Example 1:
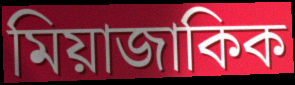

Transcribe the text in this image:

মিয়াজাকিক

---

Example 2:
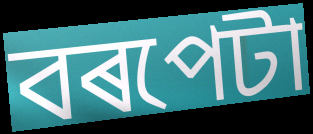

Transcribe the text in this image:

বৰপেটা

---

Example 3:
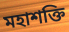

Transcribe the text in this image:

মহাশক্তি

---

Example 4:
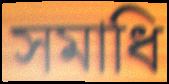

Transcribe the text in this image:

সমাধি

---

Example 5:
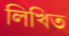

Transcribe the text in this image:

লিখিত